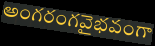
అంగరంగవైభవంగా